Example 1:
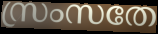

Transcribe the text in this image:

സ്രംസതേ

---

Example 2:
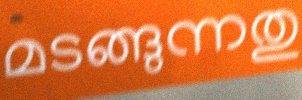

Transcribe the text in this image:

മടങ്ങുന്നതു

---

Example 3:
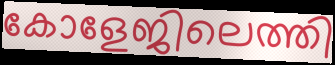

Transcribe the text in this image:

കോളേജിലെത്തി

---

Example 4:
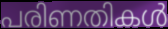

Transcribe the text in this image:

പരിണതികൾ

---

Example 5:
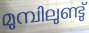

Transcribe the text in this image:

മുമ്പിലുണ്ടു്